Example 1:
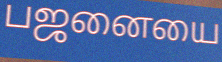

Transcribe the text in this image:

பஜனையை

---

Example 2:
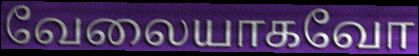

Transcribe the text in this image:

வேலையாகவோ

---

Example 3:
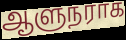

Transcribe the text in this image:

ஆளுநராக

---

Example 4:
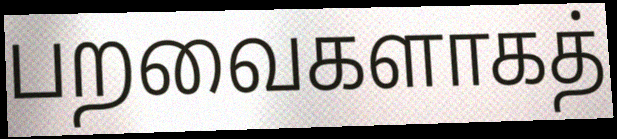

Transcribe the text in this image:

பறவைகளாகத்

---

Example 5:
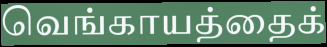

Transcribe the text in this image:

வெங்காயத்தைக்